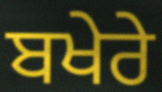
ਬਖੇਰੇ